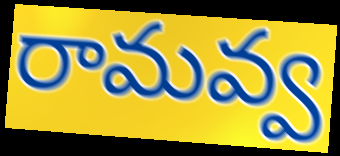
రామవ్వ